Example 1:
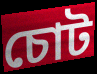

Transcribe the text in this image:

চোট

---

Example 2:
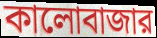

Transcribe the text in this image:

কালোবাজার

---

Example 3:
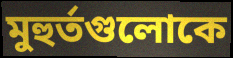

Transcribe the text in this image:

মুহুর্তগুলোকে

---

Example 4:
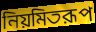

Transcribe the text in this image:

নিয়মিতরূপ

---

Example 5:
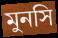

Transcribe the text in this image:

মুনসি